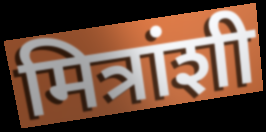
मित्रांशी